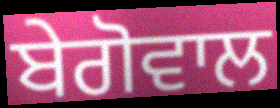
ਬੇਗੋਵਾਲ